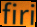
firi